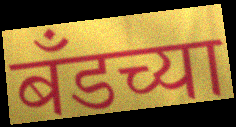
बँडच्या